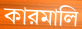
কারমালি